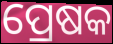
ପ୍ରେଷକ